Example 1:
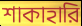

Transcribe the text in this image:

শাকাহারি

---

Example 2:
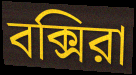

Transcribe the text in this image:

বক্সিরা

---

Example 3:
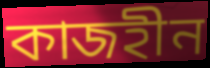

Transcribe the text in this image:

কাজহীন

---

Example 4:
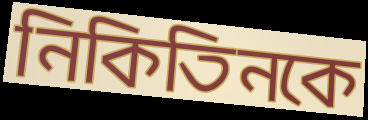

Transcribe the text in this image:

নিকিতিনকে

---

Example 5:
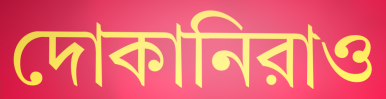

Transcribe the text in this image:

দোকানিরাও